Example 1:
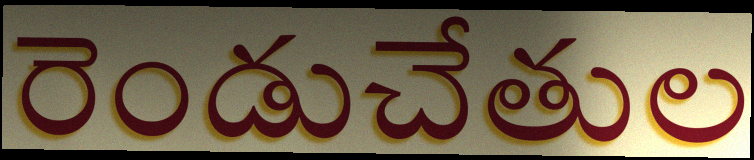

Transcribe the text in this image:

రెండుచేతుల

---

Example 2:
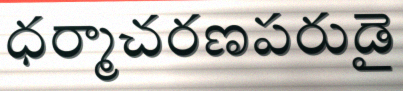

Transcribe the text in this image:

ధర్మాచరణపరుడై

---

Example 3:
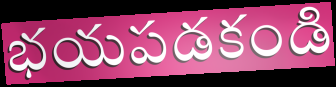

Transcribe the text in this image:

భయపడకండి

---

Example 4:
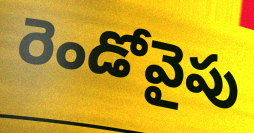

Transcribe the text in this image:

రెండోవైపు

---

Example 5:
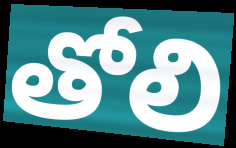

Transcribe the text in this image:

తోలి